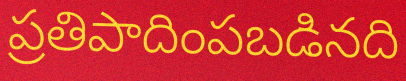
ప్రతిపాదింపబడినది